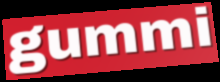
gummi